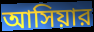
আসিয়ার